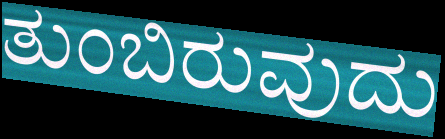
ತುಂಬಿರುವುದು